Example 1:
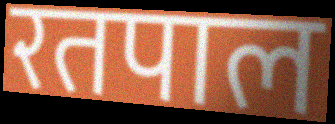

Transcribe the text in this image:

रतपाल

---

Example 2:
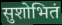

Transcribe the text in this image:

सुशोभितं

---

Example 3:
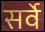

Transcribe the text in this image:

सर्वे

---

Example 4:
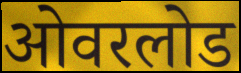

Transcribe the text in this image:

ओवरलोड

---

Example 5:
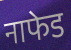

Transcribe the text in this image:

नाफेड